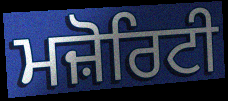
ਮਜ਼ੋਰਿਟੀ